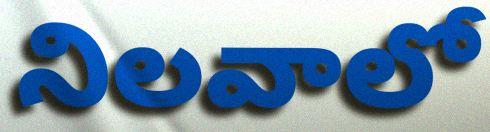
నిలవాలో